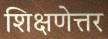
शिक्षणेत्तर